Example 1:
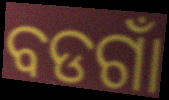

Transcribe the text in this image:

ବଡଗାଁ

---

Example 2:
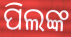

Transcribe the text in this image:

ପିଲଙ୍କ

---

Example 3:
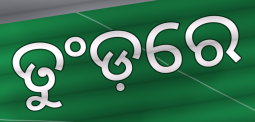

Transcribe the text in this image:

ତୁଂଡ଼ରେ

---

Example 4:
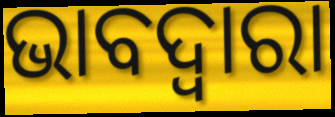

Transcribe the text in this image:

ଭାବଦ୍ଵାରା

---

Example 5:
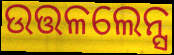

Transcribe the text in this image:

ଉତ୍ତଳଲେନ୍ସ